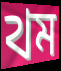
থম